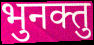
भुनक्तु